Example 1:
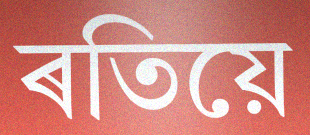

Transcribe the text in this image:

ৰতিয়ে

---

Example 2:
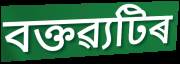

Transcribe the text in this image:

বক্তৱ্যটিৰ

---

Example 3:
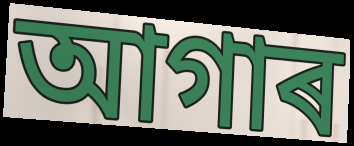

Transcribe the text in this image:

আগাৰ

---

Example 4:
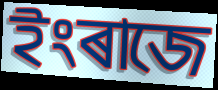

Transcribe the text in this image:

ইংৰাজে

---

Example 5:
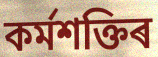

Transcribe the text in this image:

কৰ্মশক্তিৰ